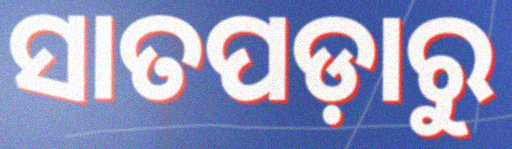
ସାତପଡ଼ାରୁ